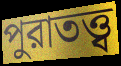
পুরাতত্ত্ব